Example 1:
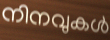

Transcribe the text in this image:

നിനവുകൾ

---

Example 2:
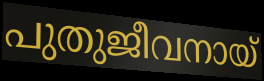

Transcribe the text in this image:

പുതുജീവനായ്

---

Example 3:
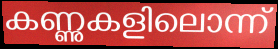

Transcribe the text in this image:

കണ്ണുകളിലൊന്ന്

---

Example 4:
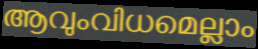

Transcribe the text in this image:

ആവുംവിധമെല്ലാം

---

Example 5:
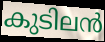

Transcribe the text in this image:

കുടിലൻ